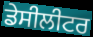
ਡੇਸੀਲੀਟਰ